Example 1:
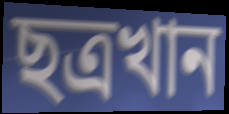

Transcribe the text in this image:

ছত্রখান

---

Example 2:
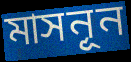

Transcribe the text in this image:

মাসনূন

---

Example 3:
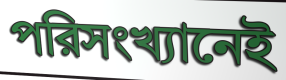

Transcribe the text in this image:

পরিসংখ্যানেই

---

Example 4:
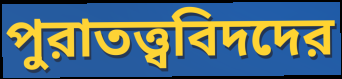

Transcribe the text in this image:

পুরাতত্ত্ববিদদের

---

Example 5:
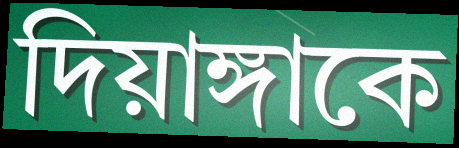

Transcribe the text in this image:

দিয়াঙ্গাকে